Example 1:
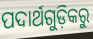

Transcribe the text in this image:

ପଦାର୍ଥଗୁଡ଼ିକରୁ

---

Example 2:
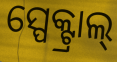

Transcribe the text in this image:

ସ୍ପେକ୍ଟ୍ରାଲ୍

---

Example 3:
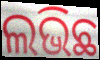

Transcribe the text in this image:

ଲଭିଛ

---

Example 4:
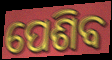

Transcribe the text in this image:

ପେଶିବ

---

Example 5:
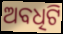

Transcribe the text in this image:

ଅବଧିଟି